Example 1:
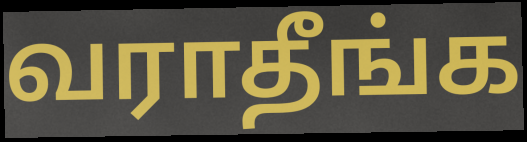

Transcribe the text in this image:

வராதீங்க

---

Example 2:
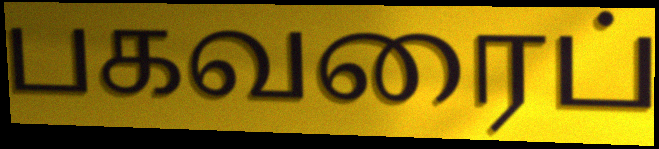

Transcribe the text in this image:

பகவரைப்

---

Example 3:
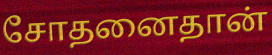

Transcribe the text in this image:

சோதனைதான்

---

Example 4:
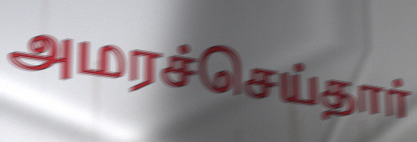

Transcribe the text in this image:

அமரச்செய்தார்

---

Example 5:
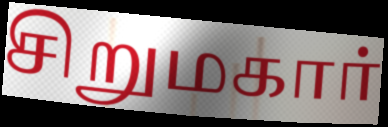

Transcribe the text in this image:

சிறுமகார்